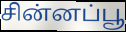
சின்னப்பூ